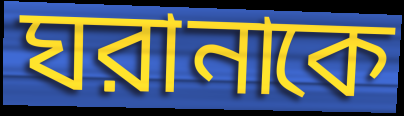
ঘরানাকে